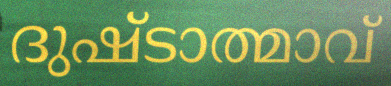
ദുഷ്ടാത്മാവ്